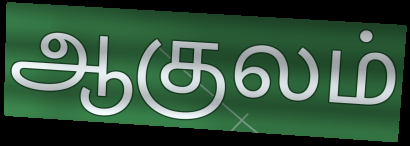
ஆகுலம்